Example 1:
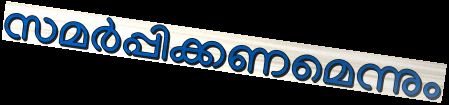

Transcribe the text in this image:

സമർപ്പിക്കണമെന്നും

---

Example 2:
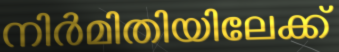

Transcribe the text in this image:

നിർമിതിയിലേക്ക്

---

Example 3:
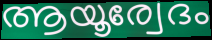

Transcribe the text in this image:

ആയൂര്വേദം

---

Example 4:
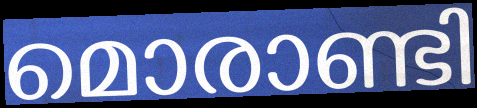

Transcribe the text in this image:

മൊരാണ്ടി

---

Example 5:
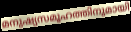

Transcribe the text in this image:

മനുഷ്യസമൂഹത്തിനുമായി